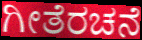
ಗೀತೆರಚನೆ